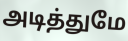
அடித்துமே